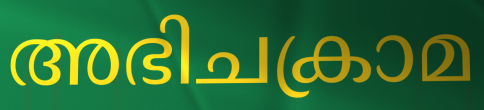
അഭിചക്രാമ